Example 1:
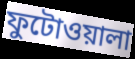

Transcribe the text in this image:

ফুটোওয়ালা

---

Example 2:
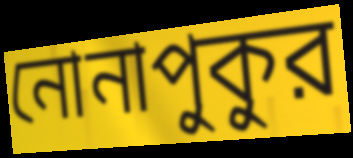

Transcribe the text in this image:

নোনাপুকুর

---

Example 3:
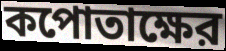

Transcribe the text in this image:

কপোতাক্ষের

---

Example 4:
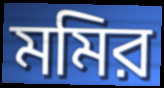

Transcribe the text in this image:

মমির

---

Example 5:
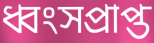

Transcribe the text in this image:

ধ্বংসপ্রাপ্ত